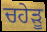
ਚਹੇਡ਼ੂ